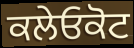
ਕਲੇਓਕੋਟ